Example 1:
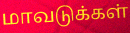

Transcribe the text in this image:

மாவடுக்கள்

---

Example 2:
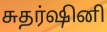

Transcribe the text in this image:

சுதர்ஷினி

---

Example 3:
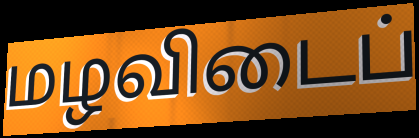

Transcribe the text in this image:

மழவிடைப்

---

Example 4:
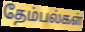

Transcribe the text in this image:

தேம்பல்கள்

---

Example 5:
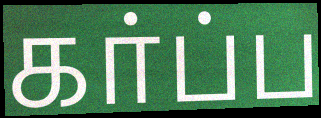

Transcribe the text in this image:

கர்ப்ப